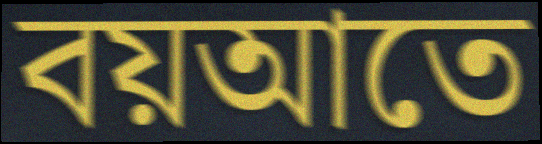
বয়আতে